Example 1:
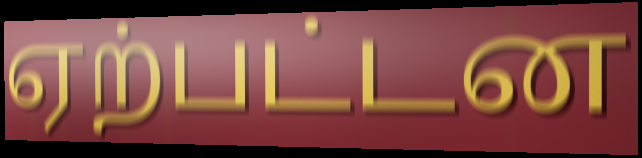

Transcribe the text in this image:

ஏற்பட்டன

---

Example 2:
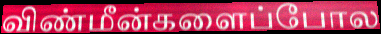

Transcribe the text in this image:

விண்மீன்களைப்போல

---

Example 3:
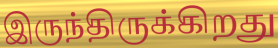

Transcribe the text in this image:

இருந்திருக்கிறது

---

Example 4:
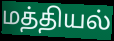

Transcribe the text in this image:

மத்தியல்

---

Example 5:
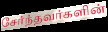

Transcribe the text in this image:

சேர்ந்தவர்களின்